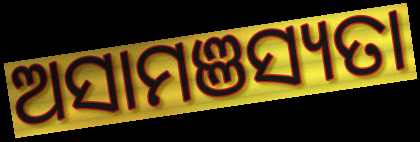
ଅସାମଞସ୍ୟତା